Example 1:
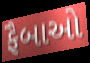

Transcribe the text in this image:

ફૈબાઓ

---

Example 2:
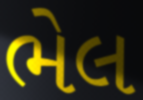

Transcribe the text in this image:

ભેલ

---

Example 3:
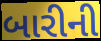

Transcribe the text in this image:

બારીની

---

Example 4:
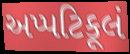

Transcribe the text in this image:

અપ્પટિકૂલં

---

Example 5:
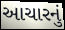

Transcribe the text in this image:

આચારનું